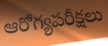
ఆరోగ్యపరీక్షలు